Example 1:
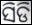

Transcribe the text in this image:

ସିଡି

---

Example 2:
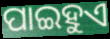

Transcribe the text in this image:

ପାଇହୁଏ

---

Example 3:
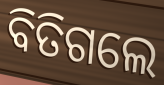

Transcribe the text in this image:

ବିତିଗଲେ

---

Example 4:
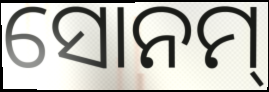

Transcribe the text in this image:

ସୋନମ୍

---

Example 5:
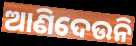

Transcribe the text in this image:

ଆଣିଦେଉନି